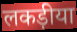
लकड़ीया